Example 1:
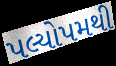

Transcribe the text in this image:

પલ્યોપમથી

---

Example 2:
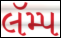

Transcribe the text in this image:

લૅમ્પ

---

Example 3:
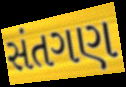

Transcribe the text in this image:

સંતગણ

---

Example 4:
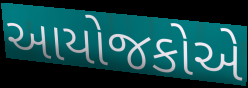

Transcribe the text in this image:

આયોજકોએ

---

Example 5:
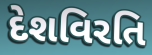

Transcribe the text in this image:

દેશવિરતિ